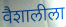
वैशालीला